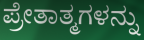
ಪ್ರೇತಾತ್ಮಗಳನ್ನು